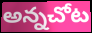
అన్నచోట